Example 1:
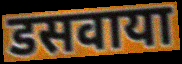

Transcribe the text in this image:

डसवाया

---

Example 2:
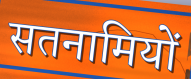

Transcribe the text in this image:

सतनामियों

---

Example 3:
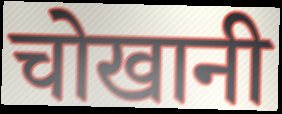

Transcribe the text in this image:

चोखानी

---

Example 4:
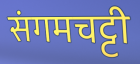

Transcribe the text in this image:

संगमचट्टी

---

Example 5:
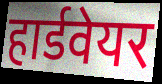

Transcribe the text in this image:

हार्डवेयर